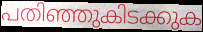
പതിഞ്ഞുകിടക്കുക